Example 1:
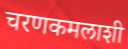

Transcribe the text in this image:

चरणकमलाशी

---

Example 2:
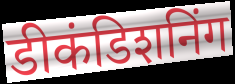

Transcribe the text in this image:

डीकंडिशनिंग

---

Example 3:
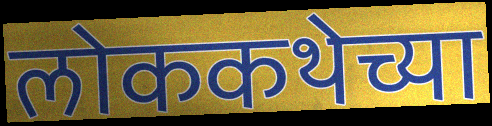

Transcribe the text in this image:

लोककथेच्या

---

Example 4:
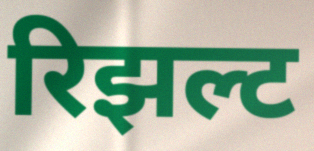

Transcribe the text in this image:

रिझल्ट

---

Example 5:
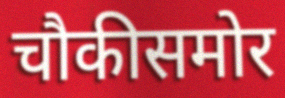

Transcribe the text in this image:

चौकीसमोर